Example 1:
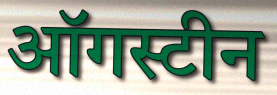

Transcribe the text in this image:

ऑगस्टीन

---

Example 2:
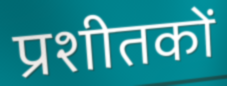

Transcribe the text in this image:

प्रशीतकों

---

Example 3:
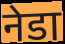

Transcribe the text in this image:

नेडा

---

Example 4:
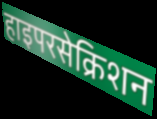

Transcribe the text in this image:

हाइपरसेक्रिशन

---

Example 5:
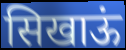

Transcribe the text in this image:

सिखाऊं